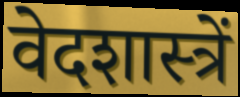
वेदशास्त्रें